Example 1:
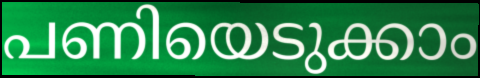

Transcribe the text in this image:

പണിയെടുക്കാം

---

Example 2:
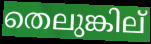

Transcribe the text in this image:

തെലുങ്കില്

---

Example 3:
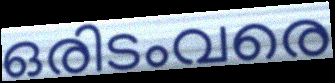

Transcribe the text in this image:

ഒരിടംവരെ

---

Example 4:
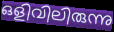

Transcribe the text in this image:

ഒളിവിലിരുന്നു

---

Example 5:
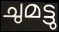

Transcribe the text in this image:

ചുമട്ടു